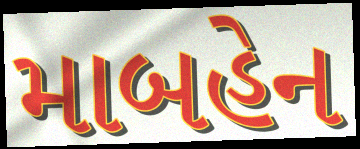
માબહેન